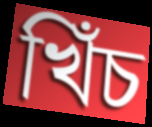
খিঁচ